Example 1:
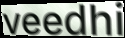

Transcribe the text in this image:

veedhi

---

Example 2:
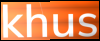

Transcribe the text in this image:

khus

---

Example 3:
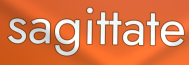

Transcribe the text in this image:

sagittate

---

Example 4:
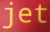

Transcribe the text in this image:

jet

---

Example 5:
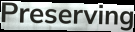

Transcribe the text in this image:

Preserving